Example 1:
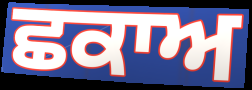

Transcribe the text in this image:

ਛਕਾਅ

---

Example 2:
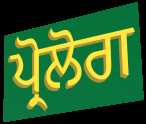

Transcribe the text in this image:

ਪ੍ਰੋਲੋਗ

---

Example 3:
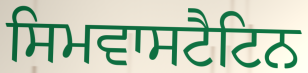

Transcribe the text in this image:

ਸਿਮਵਾਸਟੈਟਿਨ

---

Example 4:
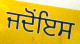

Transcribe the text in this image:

ਜਦੋਂਇਸ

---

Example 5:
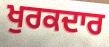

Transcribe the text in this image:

ਖੁਰਕਦਾਰ